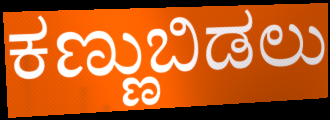
ಕಣ್ಣುಬಿಡಲು